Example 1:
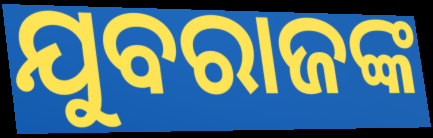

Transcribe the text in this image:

ଯୁବରାଜଙ୍କ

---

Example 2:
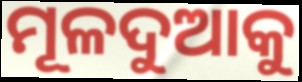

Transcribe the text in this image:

ମୂଳଦୁଆକୁ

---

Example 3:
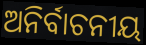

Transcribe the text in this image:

ଅନିର୍ବାଚନୀୟ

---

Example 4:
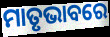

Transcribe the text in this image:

ମାତୃଭାବରେ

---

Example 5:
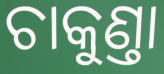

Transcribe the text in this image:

ଚାକୁଣ୍ତା